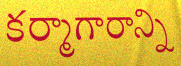
కర్మాగారాన్ని